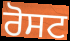
ਰੋਸਟ